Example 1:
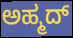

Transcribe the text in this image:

ಅಹ್ಮದ್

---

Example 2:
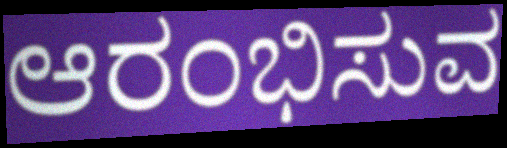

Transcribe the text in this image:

ಆರಂಭಿಸುವ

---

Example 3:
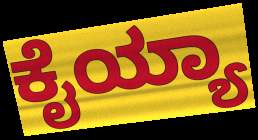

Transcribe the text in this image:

ಕೈಯ್ಯಾ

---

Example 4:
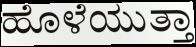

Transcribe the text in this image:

ಹೊಳೆಯುತ್ತಾ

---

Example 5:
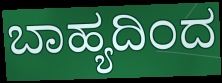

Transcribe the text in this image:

ಬಾಹ್ಯದಿಂದ